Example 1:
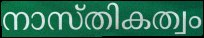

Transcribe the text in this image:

നാസ്തികത്വം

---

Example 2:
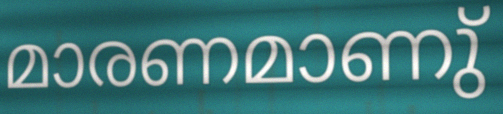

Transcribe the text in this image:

മാരണമാണു്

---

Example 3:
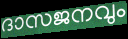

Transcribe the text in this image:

ദാസജനവും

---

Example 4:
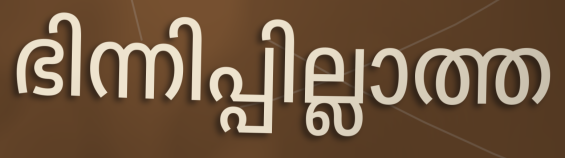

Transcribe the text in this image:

ഭിന്നിപ്പില്ലാത്ത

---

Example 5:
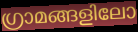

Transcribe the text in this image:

ഗ്രാമങ്ങളിലോ